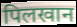
पिलखान